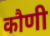
कौणी